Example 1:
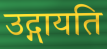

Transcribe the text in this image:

उद्गायति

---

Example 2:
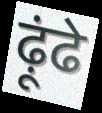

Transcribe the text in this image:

ढ़ूंढे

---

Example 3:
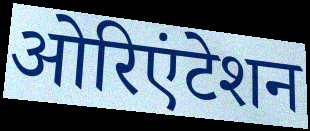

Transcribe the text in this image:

ओरिएंटेशन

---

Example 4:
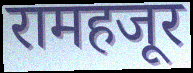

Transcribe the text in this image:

रामहजूर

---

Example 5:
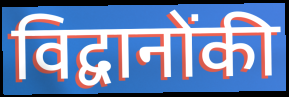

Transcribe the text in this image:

विद्वानोंकी